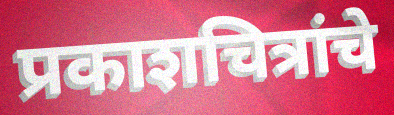
प्रकाशचित्रांचे